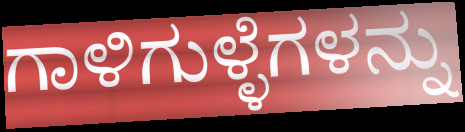
ಗಾಳಿಗುಳ್ಳೆಗಳನ್ನು